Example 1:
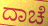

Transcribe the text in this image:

ದಾಚೆ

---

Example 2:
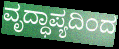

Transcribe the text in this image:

ವೃದ್ಧಾಪ್ಯದಿಂದ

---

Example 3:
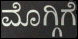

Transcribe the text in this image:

ಮೊಗ್ಗಿಗೆ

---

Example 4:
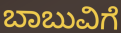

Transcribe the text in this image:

ಬಾಬುವಿಗೆ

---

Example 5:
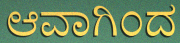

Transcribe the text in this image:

ಆವಾಗಿಂದ